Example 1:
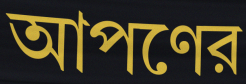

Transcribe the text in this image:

আপণের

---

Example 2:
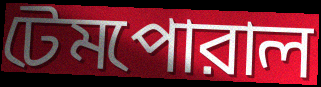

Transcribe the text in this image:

টেমপোরাল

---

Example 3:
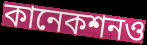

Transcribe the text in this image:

কানেকশনও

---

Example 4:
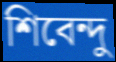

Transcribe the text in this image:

শিবেন্দু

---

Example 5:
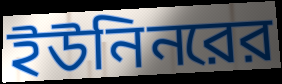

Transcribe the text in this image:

ইউনিনরের